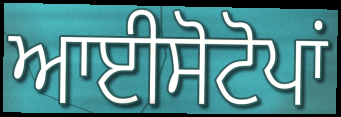
ਆਈਸੋਟੋਪਾਂ